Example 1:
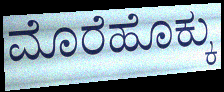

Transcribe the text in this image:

ಮೊರೆಹೊಕ್ಕು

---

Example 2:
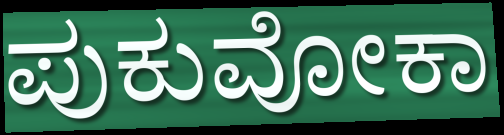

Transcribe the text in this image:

ಪುಕುವೋಕಾ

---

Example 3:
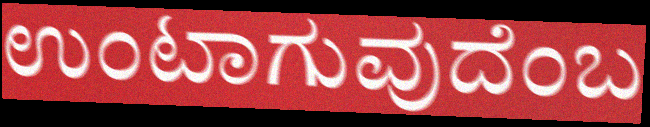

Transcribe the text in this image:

ಉಂಟಾಗುವುದೆಂಬ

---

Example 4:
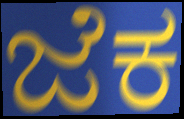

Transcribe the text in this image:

ಜೆಕ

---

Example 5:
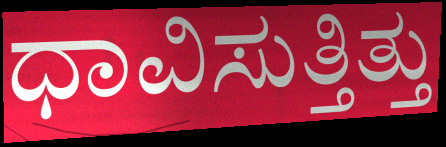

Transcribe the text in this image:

ಧಾವಿಸುತ್ತಿತ್ತು